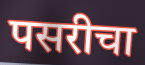
पसरीचा